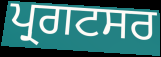
ਪ੍ਰਗਟਸਰ